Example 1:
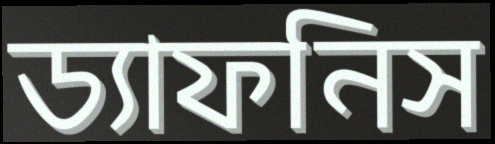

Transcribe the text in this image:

ড্যাফনিস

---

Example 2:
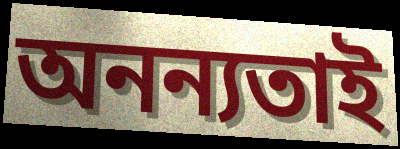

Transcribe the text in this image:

অনন্যতাই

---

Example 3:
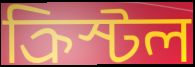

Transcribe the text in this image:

ক্রিস্টল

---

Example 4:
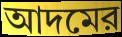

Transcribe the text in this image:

আদমের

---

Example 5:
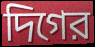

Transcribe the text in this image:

দিগের